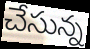
చేసున్న